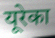
यूरेका